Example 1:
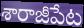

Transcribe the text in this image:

శారాజీపేట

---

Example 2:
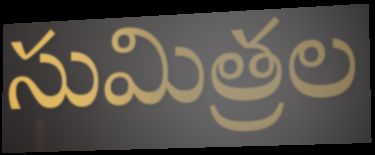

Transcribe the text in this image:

సుమిత్రల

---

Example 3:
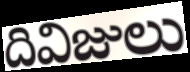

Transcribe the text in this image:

దివిజులు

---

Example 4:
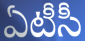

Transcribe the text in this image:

ఏటీసీ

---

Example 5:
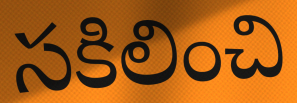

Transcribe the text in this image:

సకిలించి